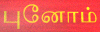
புனோம்